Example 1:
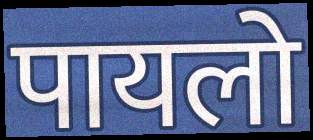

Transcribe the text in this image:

पायलो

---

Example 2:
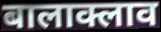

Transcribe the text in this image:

बालाक्लाव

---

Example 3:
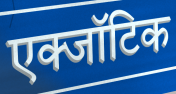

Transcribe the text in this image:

एक्जॉटिक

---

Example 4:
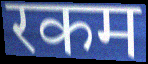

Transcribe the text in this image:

रकम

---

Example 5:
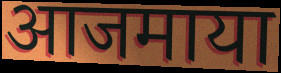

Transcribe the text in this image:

आजमाया